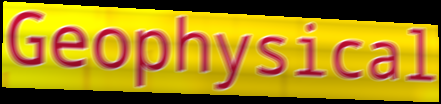
Geophysical